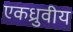
एकध्रुवीय